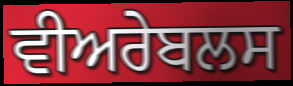
ਵੀਅਰੇਬਲਸ